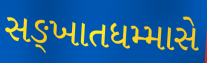
સઙ્ખાતધમ્માસે